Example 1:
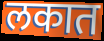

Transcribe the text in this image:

लकात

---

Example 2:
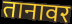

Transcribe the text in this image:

तानावर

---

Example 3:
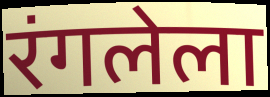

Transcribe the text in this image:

रंगलेला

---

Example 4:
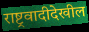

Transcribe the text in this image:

राष्ट्रवादीदेखील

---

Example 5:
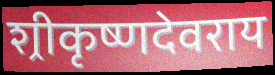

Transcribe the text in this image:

श्रीकृष्णदेवराय